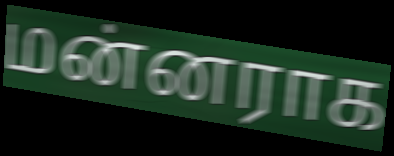
மன்னராக